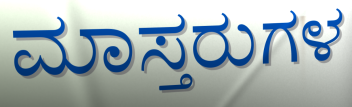
ಮಾಸ್ತರುಗಳ